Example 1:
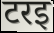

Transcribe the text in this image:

टरइ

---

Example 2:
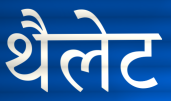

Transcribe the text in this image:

थैलेट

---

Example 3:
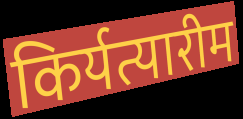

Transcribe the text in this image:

किर्यत्यारीम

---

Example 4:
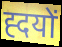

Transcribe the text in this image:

ह्दयों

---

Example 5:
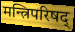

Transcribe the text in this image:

मन्त्रिपरिषद्